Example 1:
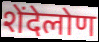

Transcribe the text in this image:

शेंदेलोण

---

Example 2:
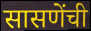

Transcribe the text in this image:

सासणेंची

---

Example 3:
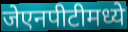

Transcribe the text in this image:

जेएनपीटीमध्ये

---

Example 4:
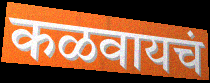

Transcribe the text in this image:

कळवायचं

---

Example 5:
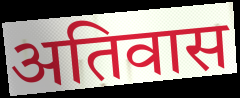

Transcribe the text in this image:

अतिवास